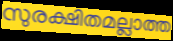
സുരക്ഷിതമല്ലാത്ത